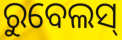
ରୁବେଲସ୍